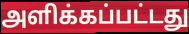
அளிக்கப்பட்டது